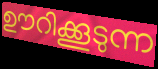
ഊറിക്കൂടുന്ന